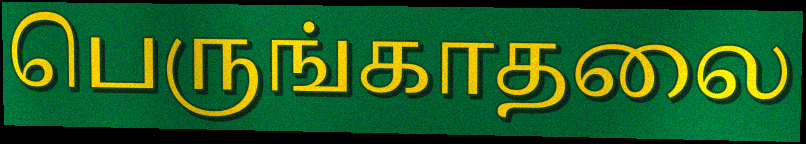
பெருங்காதலை